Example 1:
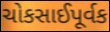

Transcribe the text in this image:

ચોકસાઈપૂર્વક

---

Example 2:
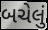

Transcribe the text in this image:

બચેલું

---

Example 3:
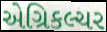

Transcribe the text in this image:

એગ્રિકલ્ચર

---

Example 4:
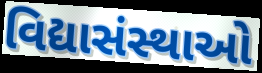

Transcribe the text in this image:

વિદ્યાસંસ્થાઓ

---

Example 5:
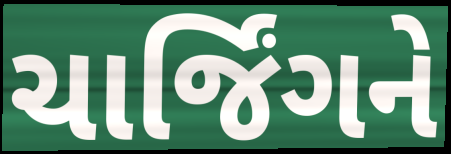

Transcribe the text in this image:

ચાર્જિંગને